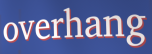
overhang